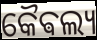
କୈଵଲ୍ୟ